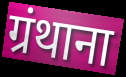
ग्रंथाना